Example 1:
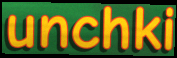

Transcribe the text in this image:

unchki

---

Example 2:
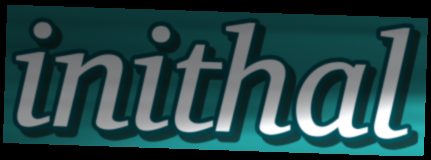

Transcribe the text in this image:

inithal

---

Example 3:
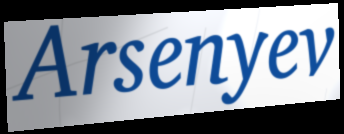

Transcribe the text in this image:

Arsenyev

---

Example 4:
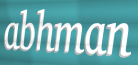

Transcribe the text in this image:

abhman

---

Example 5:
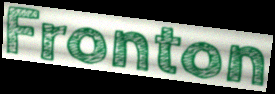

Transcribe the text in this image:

Fronton